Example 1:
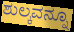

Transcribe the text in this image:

ಶುಲ್ಕವನ್ನೂ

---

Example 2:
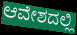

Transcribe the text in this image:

ಆವೇಶದಲ್ಲಿ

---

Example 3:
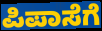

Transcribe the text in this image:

ಪಿಪಾಸೆಗೆ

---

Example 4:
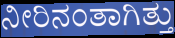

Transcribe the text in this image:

ನೀರಿನಂತಾಗಿತ್ತು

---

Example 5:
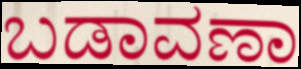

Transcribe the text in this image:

ಬಡಾವಣಾ